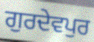
ਗੁਰਦੇਵਪੁਰ